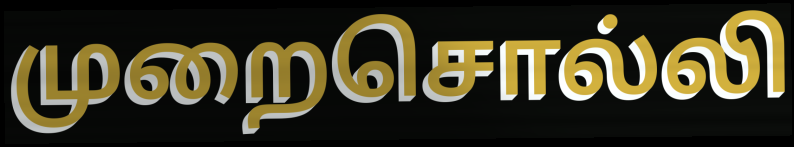
முறைசொல்லி